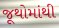
જૂથોમાંથી